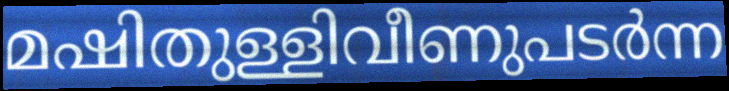
മഷിതുള്ളിവീണുപടർന്ന